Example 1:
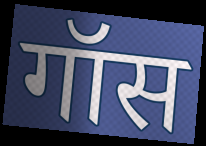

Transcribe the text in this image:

गॉस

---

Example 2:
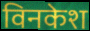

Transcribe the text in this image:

विनकेश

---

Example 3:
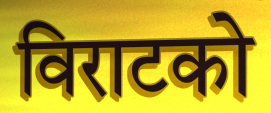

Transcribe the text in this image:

विराटको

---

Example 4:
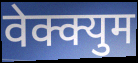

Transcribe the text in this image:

वेक्क्युम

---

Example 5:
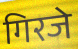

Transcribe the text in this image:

गिरजे